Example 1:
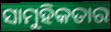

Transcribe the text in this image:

ସାମୁହିକତାର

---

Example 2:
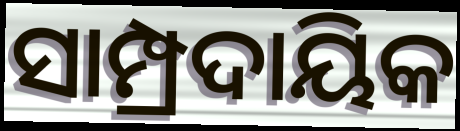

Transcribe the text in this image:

ସାମ୍ପ୍ରଦାୟିକ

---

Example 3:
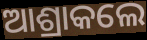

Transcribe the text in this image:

ଆଶ୍ରାକଲେ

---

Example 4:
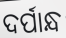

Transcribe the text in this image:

ଦର୍ପାନ୍ଧ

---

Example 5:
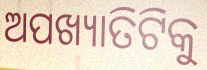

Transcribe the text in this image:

ଅପଖ୍ୟାତିଟିକୁ